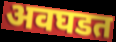
अवघडत